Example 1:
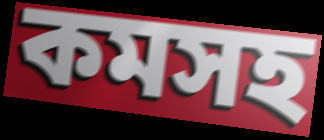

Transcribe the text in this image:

কমসহ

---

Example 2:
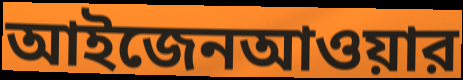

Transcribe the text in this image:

আইজেনআওয়ার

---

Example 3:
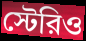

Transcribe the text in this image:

স্টেরিও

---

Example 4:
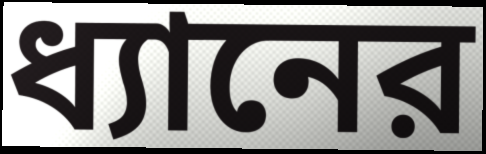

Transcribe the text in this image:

ধ্যানের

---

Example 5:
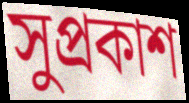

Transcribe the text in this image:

সুপ্রকাশ